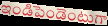
ఇండిపెండెంటుగా